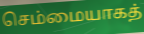
செம்மையாகத்